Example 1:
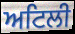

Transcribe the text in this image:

ਅਟਿਲੀ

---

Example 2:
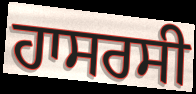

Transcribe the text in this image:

ਹਾਸਰਸੀ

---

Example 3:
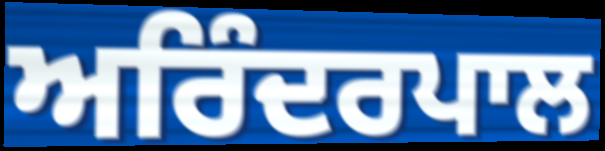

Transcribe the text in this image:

ਅਰਿੰਦਰਪਾਲ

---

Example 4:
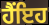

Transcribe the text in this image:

ਹੈਂਇਹ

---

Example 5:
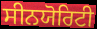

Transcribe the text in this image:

ਸੀਨਯੋਰਿਟੀ